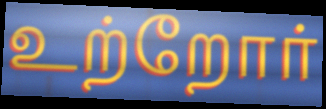
உற்றோர்